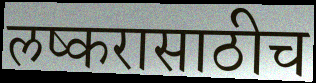
लष्करासाठीच